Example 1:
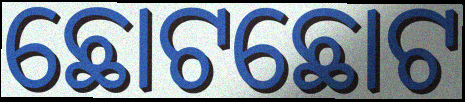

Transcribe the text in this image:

ଛୋଟଛୋଟ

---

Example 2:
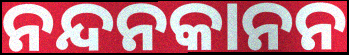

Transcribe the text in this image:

ନନ୍ଦନକାନନ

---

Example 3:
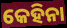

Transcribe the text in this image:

କେହିନା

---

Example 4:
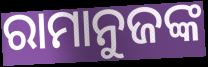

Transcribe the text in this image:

ରାମାନୁଜଙ୍କ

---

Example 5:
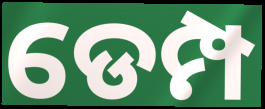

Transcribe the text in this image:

ଡେମ୍ପ